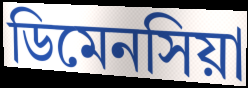
ডিমেনসিয়া